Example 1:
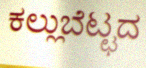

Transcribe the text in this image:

ಕಲ್ಲುಬೆಟ್ಟದ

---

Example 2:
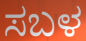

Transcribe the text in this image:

ಸಬಳ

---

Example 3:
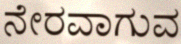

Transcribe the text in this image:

ನೇರವಾಗುವ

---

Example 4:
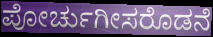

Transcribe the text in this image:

ಪೋರ್ಚುಗೀಸರೊಡನೆ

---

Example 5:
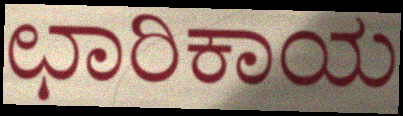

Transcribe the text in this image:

ಛಾರಿಕಾಯ